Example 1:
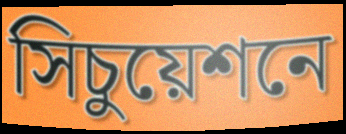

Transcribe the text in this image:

সিচুয়েশনে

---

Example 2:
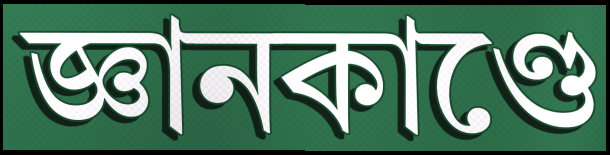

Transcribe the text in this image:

জ্ঞানকাণ্ডে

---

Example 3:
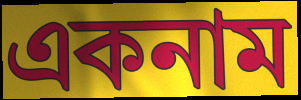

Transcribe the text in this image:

একনাম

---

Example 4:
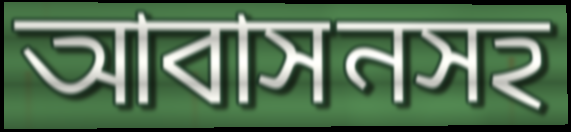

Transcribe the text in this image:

আবাসনসহ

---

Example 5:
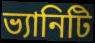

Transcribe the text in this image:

ভ্যানিটি